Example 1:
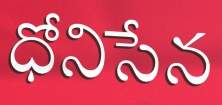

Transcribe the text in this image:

ధోనిసేన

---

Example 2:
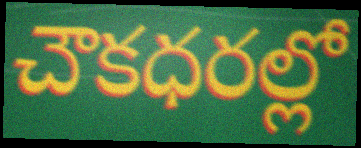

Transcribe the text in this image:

చౌకధరల్లో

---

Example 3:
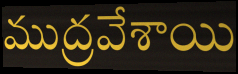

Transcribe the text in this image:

ముద్రవేశాయి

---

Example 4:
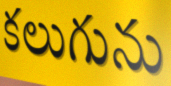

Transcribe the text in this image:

కలుగును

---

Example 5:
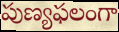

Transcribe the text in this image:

పుణ్యఫలంగా